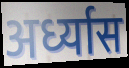
अर्ध्यास